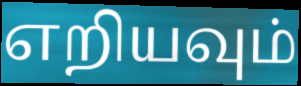
எறியவும்